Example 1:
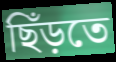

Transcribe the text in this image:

ছিঁড়তে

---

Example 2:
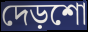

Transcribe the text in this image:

দেড়শো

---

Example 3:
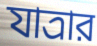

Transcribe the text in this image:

যাত্রার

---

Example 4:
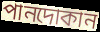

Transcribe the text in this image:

পানদোকান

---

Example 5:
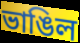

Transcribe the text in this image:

ভাঙিল